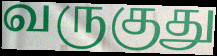
வருகுது